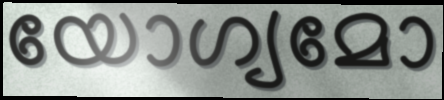
യോഗ്യമോ